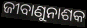
ଜୀବାଣୁନାଶକ